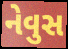
નેવુસ